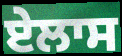
ਏਲਾਸ